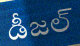
డీజల్